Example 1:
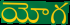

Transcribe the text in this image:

యోగ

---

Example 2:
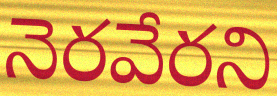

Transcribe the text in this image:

నెరవేరని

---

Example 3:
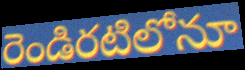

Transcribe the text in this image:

రెండిరటిలోనూ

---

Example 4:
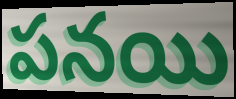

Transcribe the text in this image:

పనయి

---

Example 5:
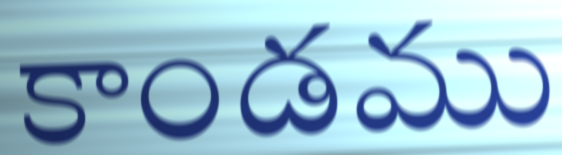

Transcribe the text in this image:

కాండము